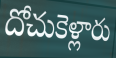
దోచుకెళ్లారు